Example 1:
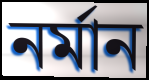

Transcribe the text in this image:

নর্মান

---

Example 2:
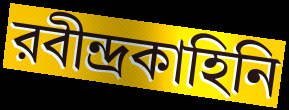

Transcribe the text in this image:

রবীন্দ্রকাহিনি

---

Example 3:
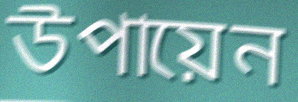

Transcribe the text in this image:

উপায়েন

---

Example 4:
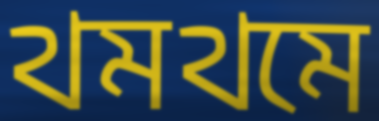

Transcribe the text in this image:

থমথমে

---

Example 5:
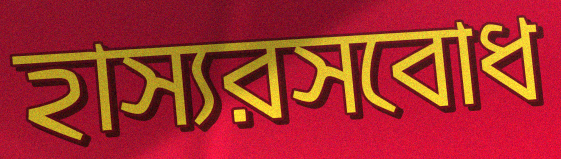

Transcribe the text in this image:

হাস্যরসবোধ